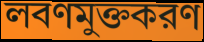
লবণমুক্তকরণ